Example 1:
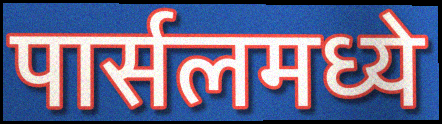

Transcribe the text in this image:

पार्सलमध्ये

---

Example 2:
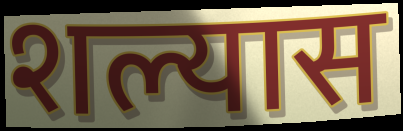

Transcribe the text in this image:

शल्यास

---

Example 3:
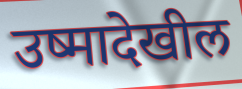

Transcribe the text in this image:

उष्मादेखील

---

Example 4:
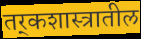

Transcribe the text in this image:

तर्कशास्त्रातील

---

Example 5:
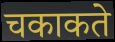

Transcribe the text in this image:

चकाकते